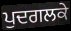
ਪੁਦਗਲਕੇ